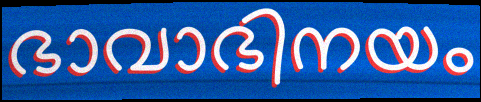
ഭാവാഭിനയം